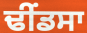
ਢੀੰਂਡਸਾ